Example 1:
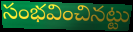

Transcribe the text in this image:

సంభవించినట్టు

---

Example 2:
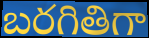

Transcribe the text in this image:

బరగితిగా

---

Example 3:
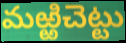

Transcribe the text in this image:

మఱ్ఱిచెట్టు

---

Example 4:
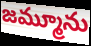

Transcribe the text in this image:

జమ్మూను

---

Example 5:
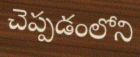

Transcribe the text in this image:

చెప్పడంలోని